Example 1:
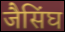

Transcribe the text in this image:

जैसिंघ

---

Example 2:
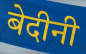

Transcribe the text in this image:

बेदीनी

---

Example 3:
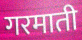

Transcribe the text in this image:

गरमाती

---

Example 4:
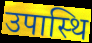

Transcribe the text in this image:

उपास्थि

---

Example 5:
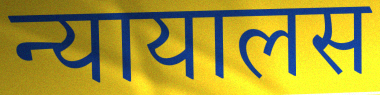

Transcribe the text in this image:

न्यायालस